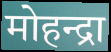
मोहन्द्रा